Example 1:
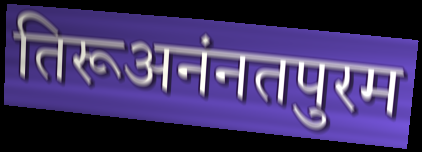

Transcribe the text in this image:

तिरूअनंनतपुरम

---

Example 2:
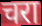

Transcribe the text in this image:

चरा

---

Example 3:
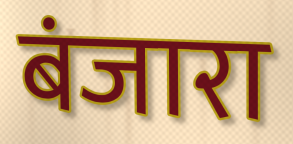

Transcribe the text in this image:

बंजारा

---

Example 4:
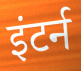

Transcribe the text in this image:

इंटर्न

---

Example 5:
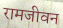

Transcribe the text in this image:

रामजीवन